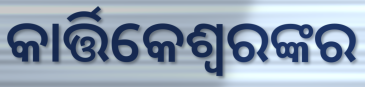
କାର୍ତ୍ତିକେଶ୍ୱରଙ୍କର